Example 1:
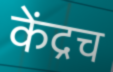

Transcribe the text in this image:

केंद्रच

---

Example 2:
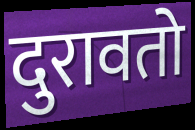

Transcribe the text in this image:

दुरावतो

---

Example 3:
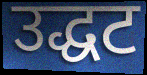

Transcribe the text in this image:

उद्धट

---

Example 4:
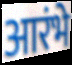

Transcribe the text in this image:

आरंभे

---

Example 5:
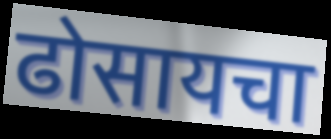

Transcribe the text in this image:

ढोसायचा